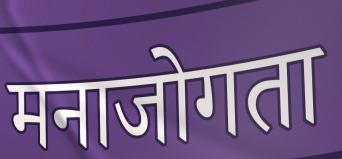
मनाजोगता